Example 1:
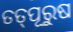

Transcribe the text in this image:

ତତ୍‌ପୂରୁଷ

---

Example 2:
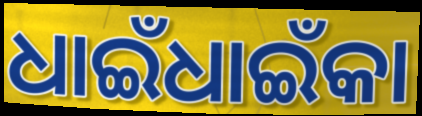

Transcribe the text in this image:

ଧାଇଁଧାଇଁକା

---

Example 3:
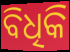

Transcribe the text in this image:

ବିଧିକି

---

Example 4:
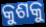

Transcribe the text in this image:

କୁଶକୁ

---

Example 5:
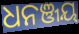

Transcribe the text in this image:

ଧନଞ୍ଜୟ